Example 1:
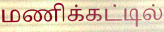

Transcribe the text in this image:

மணிக்கட்டில்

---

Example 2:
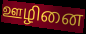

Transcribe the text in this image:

ஊழினை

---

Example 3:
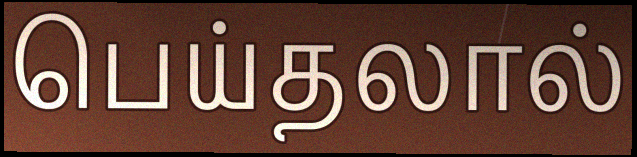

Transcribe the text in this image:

பெய்தலால்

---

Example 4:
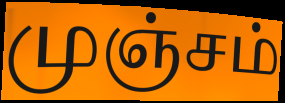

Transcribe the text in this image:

முஞ்சம்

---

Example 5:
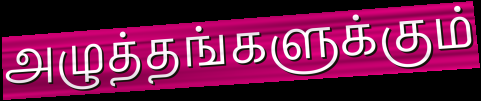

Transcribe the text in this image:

அழுத்தங்களுக்கும்